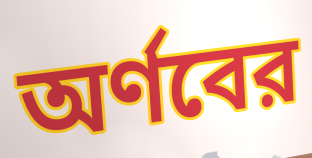
অর্ণবের